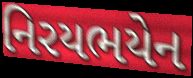
નિરયભયેન